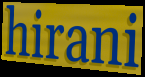
hirani